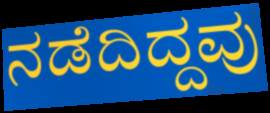
ನಡೆದಿದ್ದವು